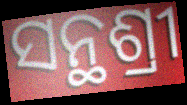
ସନ୍ଥଶ୍ରୀ